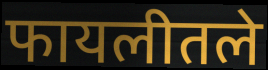
फायलीतले